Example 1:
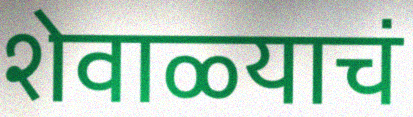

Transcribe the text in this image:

शेवाळ्याचं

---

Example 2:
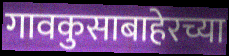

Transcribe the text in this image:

गावकुसाबाहेरच्या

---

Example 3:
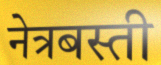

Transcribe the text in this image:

नेत्रबस्ती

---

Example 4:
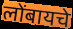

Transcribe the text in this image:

लोंबायचे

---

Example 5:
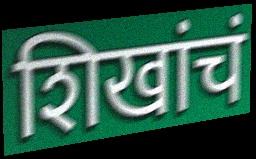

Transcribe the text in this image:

शिखांचं